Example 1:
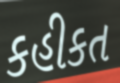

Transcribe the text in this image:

કહીકત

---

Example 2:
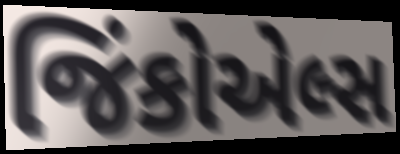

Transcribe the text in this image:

જિંકોએલ્સ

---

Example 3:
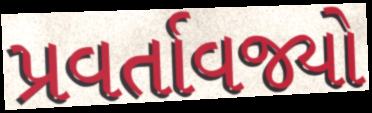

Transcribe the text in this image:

પ્રવર્તાવજ્યો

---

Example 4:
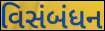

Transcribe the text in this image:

વિસંબંધન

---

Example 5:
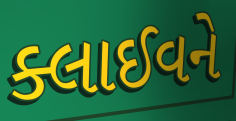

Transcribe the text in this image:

ક્લાઈવને